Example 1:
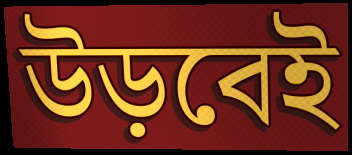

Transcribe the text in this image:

উড়বেই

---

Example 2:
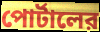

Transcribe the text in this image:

পোর্টালের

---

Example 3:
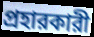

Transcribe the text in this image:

প্রহারকারী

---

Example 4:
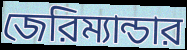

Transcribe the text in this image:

জেরিম্যান্ডার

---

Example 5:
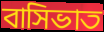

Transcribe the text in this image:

বাসিভাত